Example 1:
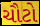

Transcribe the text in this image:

ચૌટો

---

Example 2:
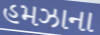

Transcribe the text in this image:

હમઝાના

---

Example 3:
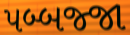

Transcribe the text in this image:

પબ્બજ્જા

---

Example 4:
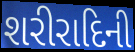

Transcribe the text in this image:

શરીરાદિની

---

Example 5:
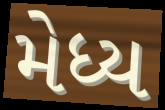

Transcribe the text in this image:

મેધ્ય